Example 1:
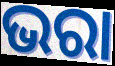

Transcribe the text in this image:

ଭରା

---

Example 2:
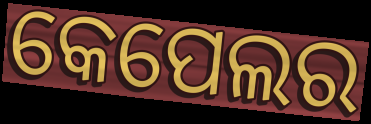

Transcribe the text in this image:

କେପେଲର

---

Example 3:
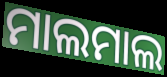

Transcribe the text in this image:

ମାଲମାଲ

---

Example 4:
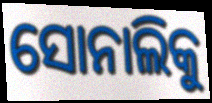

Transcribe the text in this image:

ସୋନାଲିକୁ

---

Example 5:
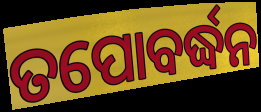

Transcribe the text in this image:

ତପୋବର୍ଦ୍ଧନ